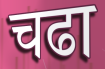
चढा